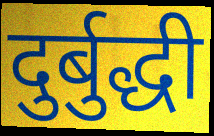
दुर्बुद्धी